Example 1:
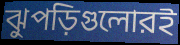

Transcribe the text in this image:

ঝুপড়িগুলোরই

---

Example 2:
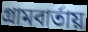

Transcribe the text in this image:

গ্রামবার্তায়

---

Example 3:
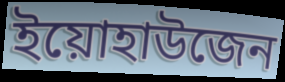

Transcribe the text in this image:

ইয়োহাউজেন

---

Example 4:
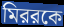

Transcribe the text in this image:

মিররকে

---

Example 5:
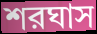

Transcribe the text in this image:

শরঘাস